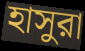
হাসুরা